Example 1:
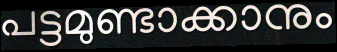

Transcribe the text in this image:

പട്ടമുണ്ടാക്കാനും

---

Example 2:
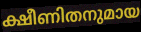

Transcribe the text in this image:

ക്ഷീണിതനുമായ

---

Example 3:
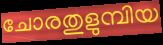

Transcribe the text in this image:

ചോരതുളുമ്പിയ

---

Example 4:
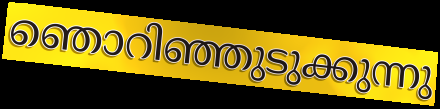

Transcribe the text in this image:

ഞൊറിഞ്ഞുടുക്കുന്നു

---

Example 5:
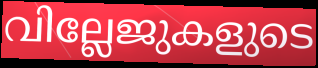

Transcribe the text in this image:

വില്ലേജുകളുടെ